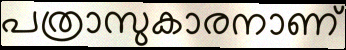
പത്രാസുകാരനാണ്